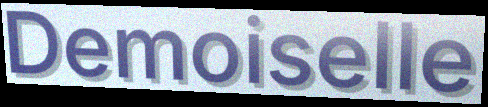
Demoiselle